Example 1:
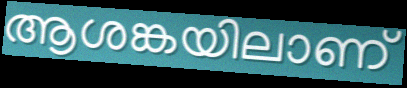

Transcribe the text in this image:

ആശങ്കയിലാണ്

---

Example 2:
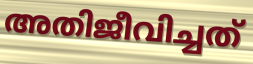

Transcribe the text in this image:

അതിജീവിച്ചത്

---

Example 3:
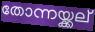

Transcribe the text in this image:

തോന്നയ്ക്കല്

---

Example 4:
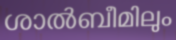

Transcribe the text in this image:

ശാൽബീമിലും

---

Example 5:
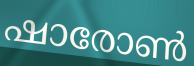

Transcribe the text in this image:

ഷാരോൺ